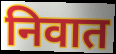
निवात